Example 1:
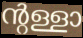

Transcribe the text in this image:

ന്റള്ളാ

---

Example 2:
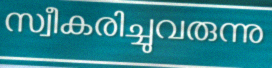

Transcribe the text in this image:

സ്വീകരിച്ചുവരുന്നു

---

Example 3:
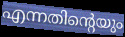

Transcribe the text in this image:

എന്നതിന്റെയും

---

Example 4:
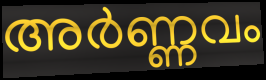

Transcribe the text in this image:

അർണ്ണവം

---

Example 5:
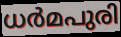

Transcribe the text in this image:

ധർമപുരി